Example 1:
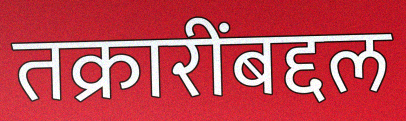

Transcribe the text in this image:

तक्रारींबद्दल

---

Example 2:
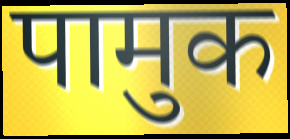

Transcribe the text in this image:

पामुक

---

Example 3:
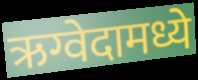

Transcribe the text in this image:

ऋग्वेदामध्ये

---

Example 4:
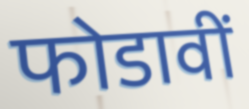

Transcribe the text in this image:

फोडावीं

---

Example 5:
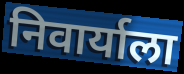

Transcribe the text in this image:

निवार्याला